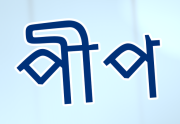
পীপ